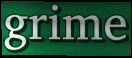
grime